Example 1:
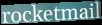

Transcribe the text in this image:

rocketmail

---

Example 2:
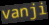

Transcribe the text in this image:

vanji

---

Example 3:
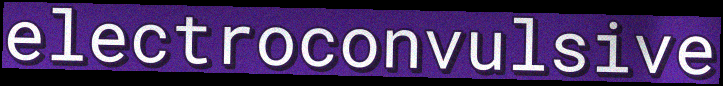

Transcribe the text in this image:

electroconvulsive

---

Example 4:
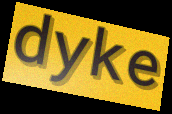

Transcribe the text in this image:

dyke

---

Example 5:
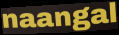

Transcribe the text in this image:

naangal